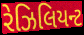
રેઝિલિયન્ટ